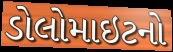
ડોલોમાઇટનો